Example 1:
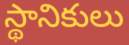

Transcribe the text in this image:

స్థానికులు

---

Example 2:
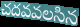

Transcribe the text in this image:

చదవవలసిన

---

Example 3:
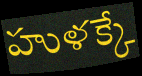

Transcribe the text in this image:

హుళక్కే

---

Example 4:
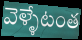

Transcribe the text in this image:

వెళ్ళేటంత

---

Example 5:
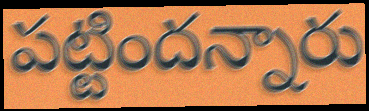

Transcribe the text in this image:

పట్టిందన్నారు